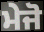
ਮੇਜੋ